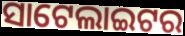
ସାଟେଲାଇଟର